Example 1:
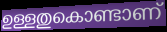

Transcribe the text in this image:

ഉള്ളതുകൊണ്ടാണ്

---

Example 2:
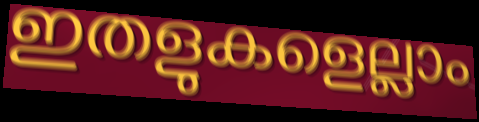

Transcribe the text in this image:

ഇതളുകളെല്ലാം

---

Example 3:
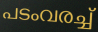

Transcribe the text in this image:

പടംവരച്ച്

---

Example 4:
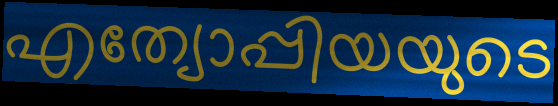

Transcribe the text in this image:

എത്യോപ്പിയയുടെ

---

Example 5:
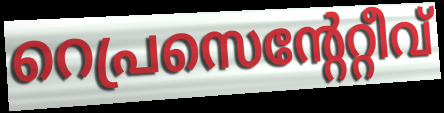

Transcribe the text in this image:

റെപ്രസെന്റേറ്റീവ്